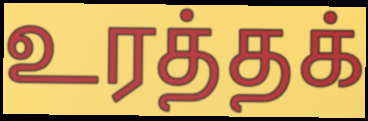
உரத்தக்